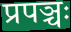
प्रपञ्चः